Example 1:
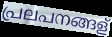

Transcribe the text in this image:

പ്രലപനങ്ങള്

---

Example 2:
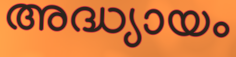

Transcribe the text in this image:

അദ്ധ്യായം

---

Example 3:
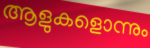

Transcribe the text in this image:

ആളുകളൊന്നും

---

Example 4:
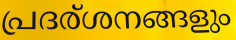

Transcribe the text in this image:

പ്രദര്ശനങ്ങളും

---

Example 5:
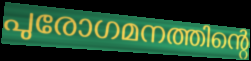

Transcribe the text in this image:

പുരോഗമനത്തിന്റെ